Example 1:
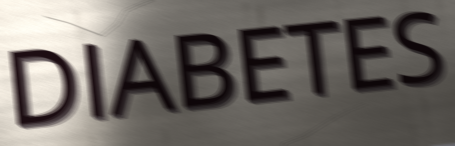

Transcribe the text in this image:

DIABETES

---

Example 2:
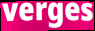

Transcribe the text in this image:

verges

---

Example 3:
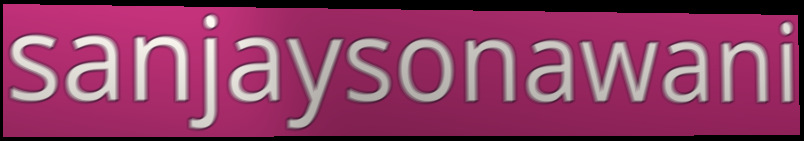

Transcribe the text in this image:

sanjaysonawani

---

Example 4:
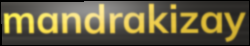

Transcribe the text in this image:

mandrakizay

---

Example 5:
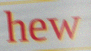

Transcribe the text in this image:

hew